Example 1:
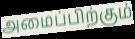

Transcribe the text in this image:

அமைப்பிற்கும்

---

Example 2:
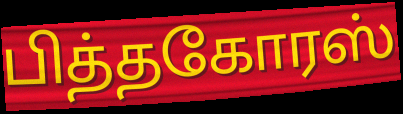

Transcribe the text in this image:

பித்தகோரஸ்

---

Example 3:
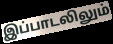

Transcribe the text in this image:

இப்பாடலிலும்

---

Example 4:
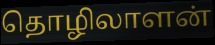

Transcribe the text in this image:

தொழிலாளன்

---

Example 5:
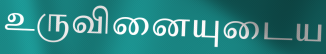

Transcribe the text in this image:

உருவினையுடைய